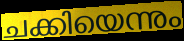
ചക്കിയെന്നും